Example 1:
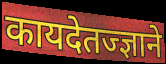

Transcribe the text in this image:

कायदेतज्ज्ञाने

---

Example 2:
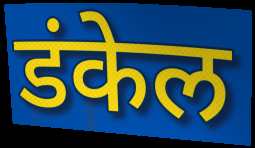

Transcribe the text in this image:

डंकेल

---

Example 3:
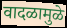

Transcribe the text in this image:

वादळामुळे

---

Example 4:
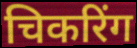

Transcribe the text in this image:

चिकरिंग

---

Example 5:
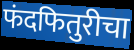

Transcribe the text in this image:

फंदफितुरीचा